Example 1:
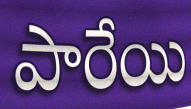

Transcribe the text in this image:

పారేయి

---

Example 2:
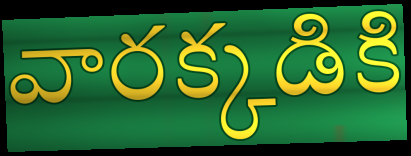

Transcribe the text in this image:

వారక్కడికి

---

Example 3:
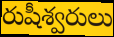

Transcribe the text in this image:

రుషీశ్వరులు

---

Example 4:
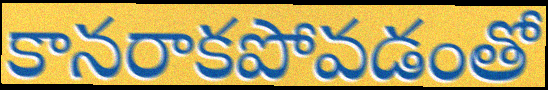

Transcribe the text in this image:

కానరాకపోవడంతో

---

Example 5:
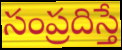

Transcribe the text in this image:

సంప్రదిస్తే